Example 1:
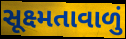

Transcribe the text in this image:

સૂક્ષ્મતાવાળું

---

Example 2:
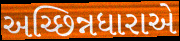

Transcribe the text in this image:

અચ્છિન્નધારાએ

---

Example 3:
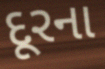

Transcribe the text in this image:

દૂરના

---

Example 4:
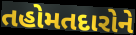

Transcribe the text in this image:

તહોમતદારોને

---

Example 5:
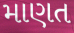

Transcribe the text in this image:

માણત